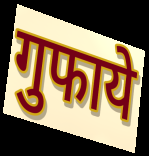
गुफाये